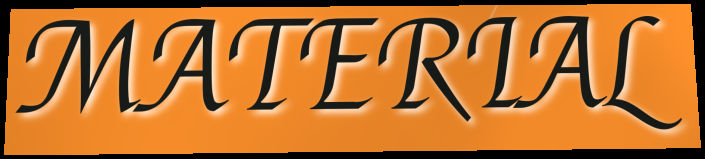
MATERIAL